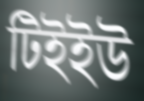
টিইইউ